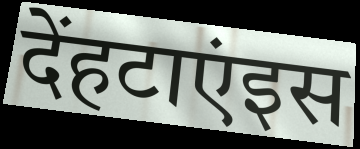
देंहटाएंइस